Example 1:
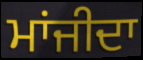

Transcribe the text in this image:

ਮਾਂਜੀਦਾ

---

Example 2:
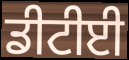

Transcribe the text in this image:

ਡੀਟੀਈ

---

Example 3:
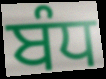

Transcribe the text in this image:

ਬੰਧ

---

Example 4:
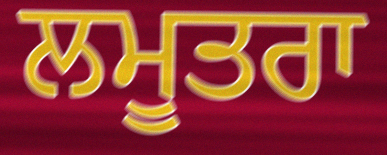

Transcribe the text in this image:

ਲਮੂਤਰਾ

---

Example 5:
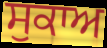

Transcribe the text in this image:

ਸੁਕਾਅ